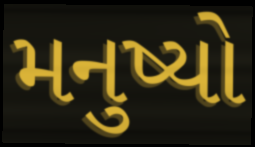
મનુષ્યો